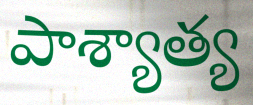
పాశ్యాత్య